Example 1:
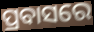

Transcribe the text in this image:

ପ୍ରବାସରେ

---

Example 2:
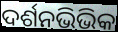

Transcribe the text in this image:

ଦର୍ଶନଭିଭିକ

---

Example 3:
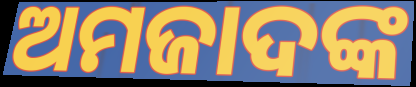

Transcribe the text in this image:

ଅମଜାଦଙ୍କ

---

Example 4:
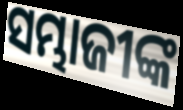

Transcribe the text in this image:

ସମ୍ଭାଜୀଙ୍କ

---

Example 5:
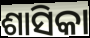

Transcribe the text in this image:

ଶାସିକା